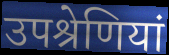
उपश्रेणियां